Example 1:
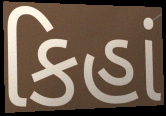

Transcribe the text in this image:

કિહાં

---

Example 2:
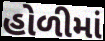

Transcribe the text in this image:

હોળીમાં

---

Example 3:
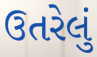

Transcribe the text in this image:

ઉતરેલું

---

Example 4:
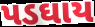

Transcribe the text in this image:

પડઘાય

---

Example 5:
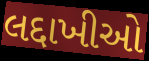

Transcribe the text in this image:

લદ્દાખીઓ